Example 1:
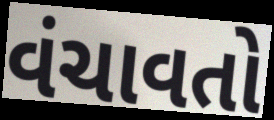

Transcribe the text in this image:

વંચાવતો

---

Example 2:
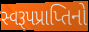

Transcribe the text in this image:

સ્વરૂપપ્રાપ્તિનો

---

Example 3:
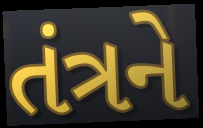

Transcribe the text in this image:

તંત્રને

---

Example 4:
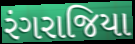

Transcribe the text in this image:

રંગરાજિયા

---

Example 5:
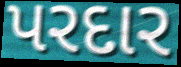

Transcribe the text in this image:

પરદાર